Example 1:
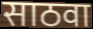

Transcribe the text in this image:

साठवा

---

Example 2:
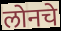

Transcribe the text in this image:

लोनचे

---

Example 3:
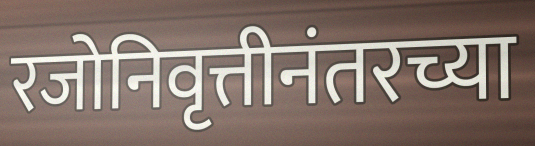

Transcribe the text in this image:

रजोनिवृत्तीनंतरच्या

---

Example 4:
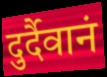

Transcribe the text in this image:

दुर्दैवानं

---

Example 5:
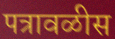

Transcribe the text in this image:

पत्रावळीस